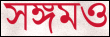
সঙ্গমও